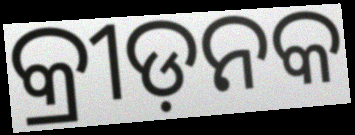
କ୍ରୀଡ଼ନକ